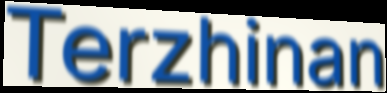
Terzhinan